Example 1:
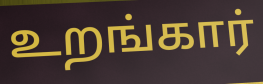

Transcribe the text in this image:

உறங்கார்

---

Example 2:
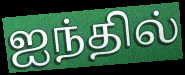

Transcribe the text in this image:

ஐந்தில்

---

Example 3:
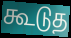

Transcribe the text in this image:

கூடுத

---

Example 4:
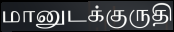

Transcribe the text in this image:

மானுடக்குருதி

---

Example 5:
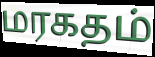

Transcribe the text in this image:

மரகதம்